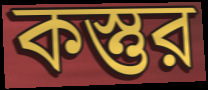
কস্তুর